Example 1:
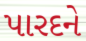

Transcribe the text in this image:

પારદને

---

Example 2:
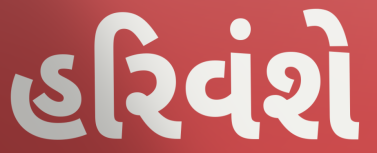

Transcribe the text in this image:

હરિવંશે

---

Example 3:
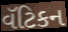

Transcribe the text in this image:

વૅટિકન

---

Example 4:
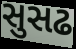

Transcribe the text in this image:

સુસઢ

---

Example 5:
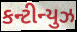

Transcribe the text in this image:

કન્ટીન્યુઝ